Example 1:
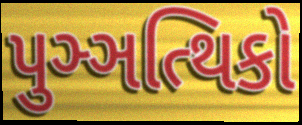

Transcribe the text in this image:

પુઞ્ઞત્થિકો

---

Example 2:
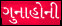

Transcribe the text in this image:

ગુનાહોની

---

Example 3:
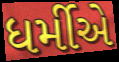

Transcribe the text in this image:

ધર્મીએ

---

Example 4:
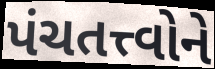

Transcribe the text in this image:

પંચતત્ત્વોને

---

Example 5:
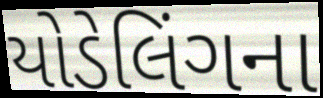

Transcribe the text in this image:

યોડેલિંગના